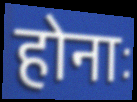
होनाः